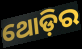
ଥୋଡ଼ିର